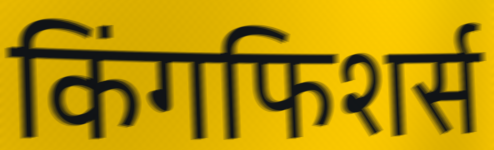
किंगफिशर्स